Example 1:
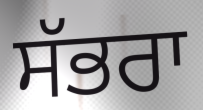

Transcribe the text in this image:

ਸੱਭਰਾ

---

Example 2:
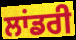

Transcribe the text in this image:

ਲਾਂਡਰੀ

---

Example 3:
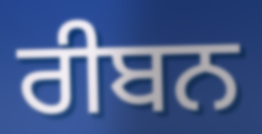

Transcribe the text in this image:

ਰੀਬਨ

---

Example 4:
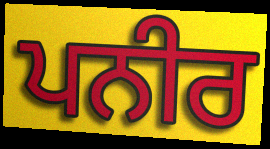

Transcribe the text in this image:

ਪਨੀਰ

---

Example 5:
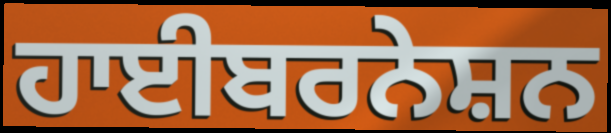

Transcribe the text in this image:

ਹਾਈਬਰਨੇਸ਼ਨ